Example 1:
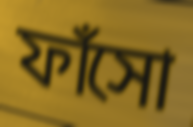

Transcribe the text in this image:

ফাঁসো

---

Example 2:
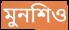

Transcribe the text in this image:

মুনশিও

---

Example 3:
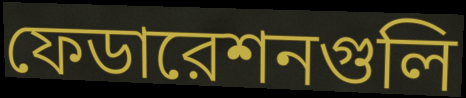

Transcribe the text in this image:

ফেডারেশনগুলি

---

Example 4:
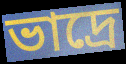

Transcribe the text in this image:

ভাদ্রে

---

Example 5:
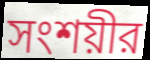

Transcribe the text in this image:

সংশয়ীর